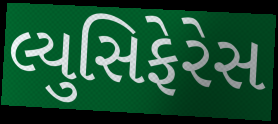
લ્યુસિફેરેસ